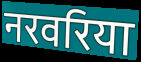
नरवरिया